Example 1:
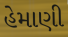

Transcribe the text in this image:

હેમાણી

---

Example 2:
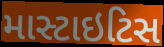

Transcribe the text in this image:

માસ્ટાઇટિસ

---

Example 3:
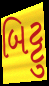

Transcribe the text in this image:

બિટ્ટુ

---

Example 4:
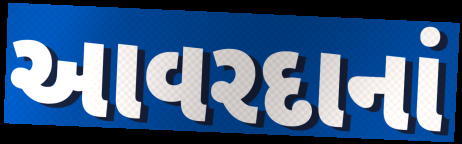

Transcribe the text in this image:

આવરદાનાં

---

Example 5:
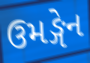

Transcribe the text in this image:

ઉમઙ્ગેન